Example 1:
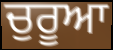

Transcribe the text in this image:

ਚੁਰੂਆ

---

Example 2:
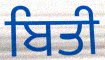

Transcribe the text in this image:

ਬਿਤੀ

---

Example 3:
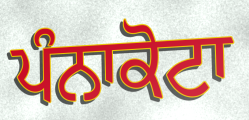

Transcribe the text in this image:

ਪੰਨਾਕੋਟਾ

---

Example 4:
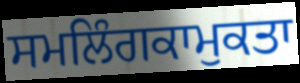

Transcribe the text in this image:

ਸਮਲਿੰਗਕਾਮੁਕਤਾ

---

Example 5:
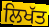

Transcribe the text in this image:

ਲਿਖੱਤ